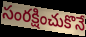
సంరక్షించుకొనే